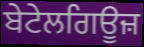
ਬੇਟੇਲਗਿਊਜ਼